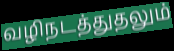
வழிநடத்துதலும்